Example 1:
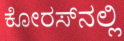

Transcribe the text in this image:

ಕೋರಸ್‌ನಲ್ಲಿ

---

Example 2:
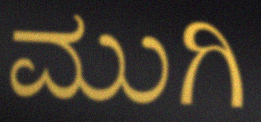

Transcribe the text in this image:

ಮುಗಿ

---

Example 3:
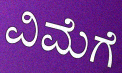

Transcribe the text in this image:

ವಿಮೆಗೆ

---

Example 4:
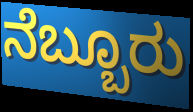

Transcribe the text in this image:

ನೆಬ್ಬೂರು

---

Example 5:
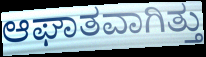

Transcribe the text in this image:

ಆಘಾತವಾಗಿತ್ತು